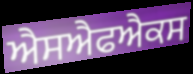
ਐਸਐਫਐਕਸ